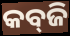
କବ୍‍ଜି